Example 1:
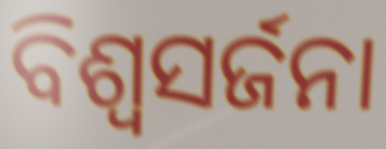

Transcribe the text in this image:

ବିଶ୍ଵସର୍ଜନା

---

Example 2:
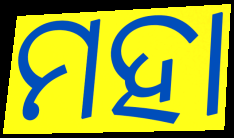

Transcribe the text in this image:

ମହା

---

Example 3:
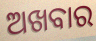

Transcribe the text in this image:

ଅଖବାର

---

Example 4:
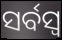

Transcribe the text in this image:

ସର୍ବସ୍ୱ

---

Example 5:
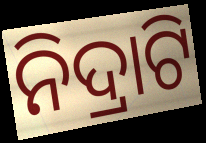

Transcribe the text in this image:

ନିଦ୍ରାଟି